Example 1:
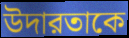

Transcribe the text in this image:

উদারতাকে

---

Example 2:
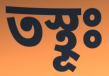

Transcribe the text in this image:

তস্থূঃ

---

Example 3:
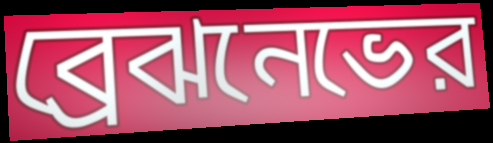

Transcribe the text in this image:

ব্রেঝনেভের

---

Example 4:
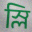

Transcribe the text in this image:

স্লি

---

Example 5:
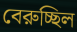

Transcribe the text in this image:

বেরুচ্ছিল